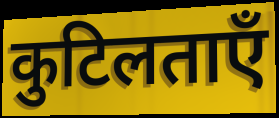
कुटिलताएँ